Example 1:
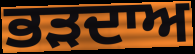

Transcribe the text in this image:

ਭੜਦਾਅ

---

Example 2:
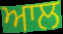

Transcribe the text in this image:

ਆਲ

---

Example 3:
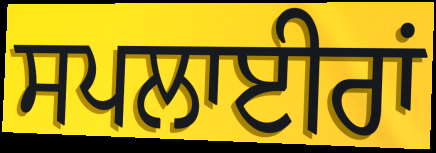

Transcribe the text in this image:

ਸਪਲਾਈਰਾਂ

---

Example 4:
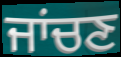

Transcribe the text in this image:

ਜਾਂਚਣ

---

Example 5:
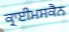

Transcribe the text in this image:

ਕ੍ਰਾਈਮਸਕੈਨ